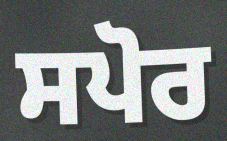
ਸਪੋਰ